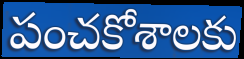
పంచకోశాలకు